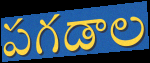
పగడాల